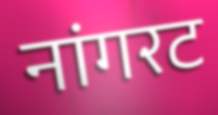
नांगरट